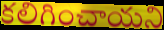
కలిగించాయని